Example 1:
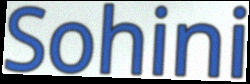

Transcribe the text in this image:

Sohini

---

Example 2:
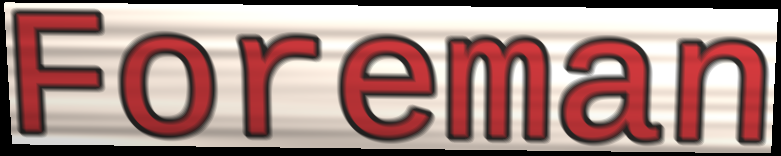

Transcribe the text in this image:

Foreman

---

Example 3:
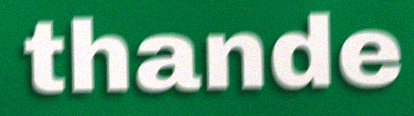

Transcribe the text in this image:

thande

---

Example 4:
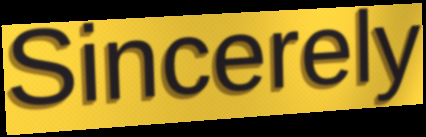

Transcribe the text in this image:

Sincerely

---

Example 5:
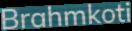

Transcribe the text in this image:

Brahmkoti